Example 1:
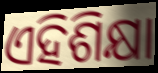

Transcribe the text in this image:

ଏହିଶିକ୍ଷା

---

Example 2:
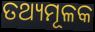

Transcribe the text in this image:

ତଥ୍ୟମୂଳକ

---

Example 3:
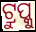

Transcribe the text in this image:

ଟ୍ରୁପ୍କୁ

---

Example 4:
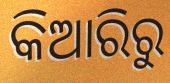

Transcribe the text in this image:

କିଆରିରୁ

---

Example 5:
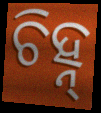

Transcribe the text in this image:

ଚିହ୍ନ୍